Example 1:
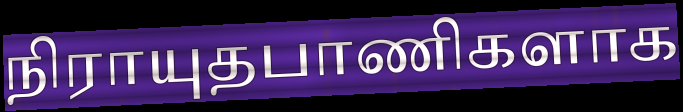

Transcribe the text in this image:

நிராயுதபாணிகளாக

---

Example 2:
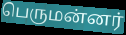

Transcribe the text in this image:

பெருமன்னர்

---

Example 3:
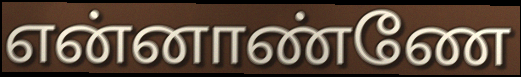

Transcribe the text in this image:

என்னாண்ணே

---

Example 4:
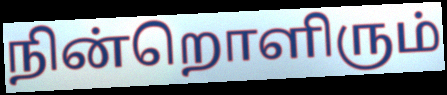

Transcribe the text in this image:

நின்றொளிரும்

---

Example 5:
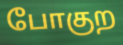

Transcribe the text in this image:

போகுற